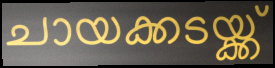
ചായക്കടയ്ക്ക്